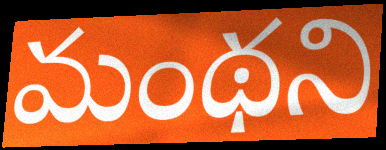
మంథని